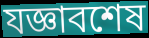
যজ্ঞাবশেষ